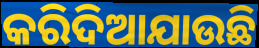
କରିଦିଆଯାଉଛି